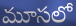
మూసలో